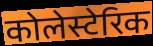
कोलेस्टेरिक